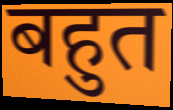
बहुत